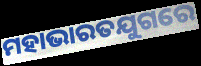
ମହାଭାରତଯୁଗରେ